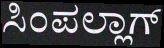
ಸಿಂಪಲ್ಲಾಗ್